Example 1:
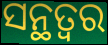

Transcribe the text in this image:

ସନ୍ଥତ୍ବର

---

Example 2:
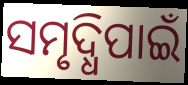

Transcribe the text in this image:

ସମୃଦ୍ଧିପାଇଁ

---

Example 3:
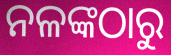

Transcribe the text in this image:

ନଳଙ୍କଠାରୁ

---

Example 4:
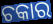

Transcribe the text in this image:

ଚକାର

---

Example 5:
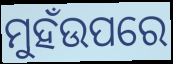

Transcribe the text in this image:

ମୁହଁଉପରେ